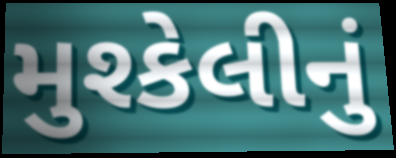
મુશ્કેલીનું